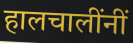
हालचालींनीं